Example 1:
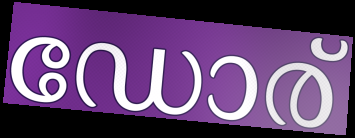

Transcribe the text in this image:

ഡോര്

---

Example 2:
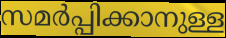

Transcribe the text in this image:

സമർപ്പിക്കാനുള്ള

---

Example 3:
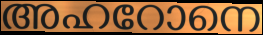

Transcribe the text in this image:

അഹറോനെ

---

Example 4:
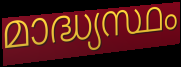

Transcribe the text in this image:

മാദ്ധ്യസ്ഥം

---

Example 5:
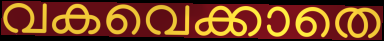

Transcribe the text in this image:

വകവെക്കാതെ